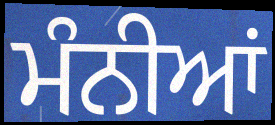
ਮੰਨੀਆਂ